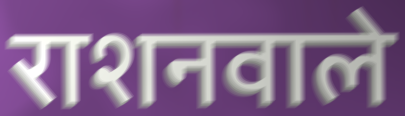
राशनवाले